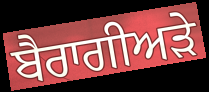
ਬੈਰਾਗੀਅੜੇ